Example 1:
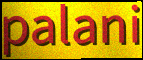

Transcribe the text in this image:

palani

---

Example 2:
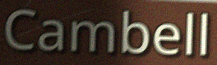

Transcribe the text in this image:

Cambell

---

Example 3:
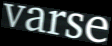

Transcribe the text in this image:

varse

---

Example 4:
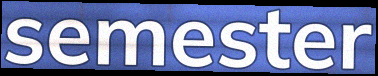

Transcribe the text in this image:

semester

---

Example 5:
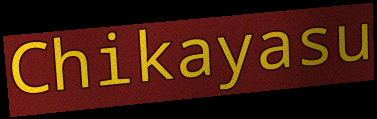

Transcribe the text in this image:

Chikayasu